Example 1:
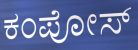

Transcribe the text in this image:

ಕಂಪೋಸ್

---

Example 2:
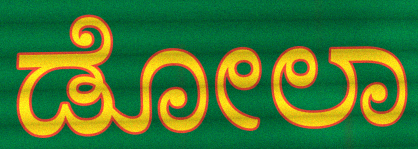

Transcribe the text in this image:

ಡೋಲಾ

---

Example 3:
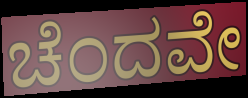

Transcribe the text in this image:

ಚೆಂದವೇ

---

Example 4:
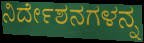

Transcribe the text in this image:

ನಿರ್ದೇಶನಗಳನ್ನ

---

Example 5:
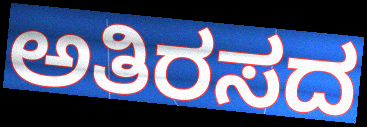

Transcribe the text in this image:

ಅತಿರಸದ